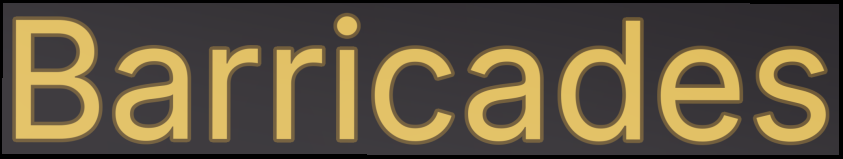
Barricades